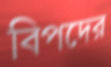
বিপদের